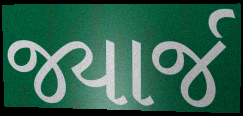
જ્યાર્જ